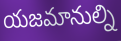
యజమానుల్ని